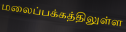
மலைப்பக்கத்திலுள்ள